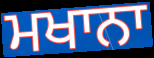
ਮਖਾਨਾ